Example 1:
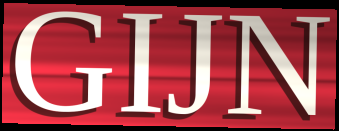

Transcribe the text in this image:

GIJN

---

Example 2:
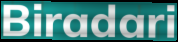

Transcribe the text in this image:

Biradari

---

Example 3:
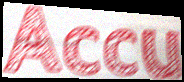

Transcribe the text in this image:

Accu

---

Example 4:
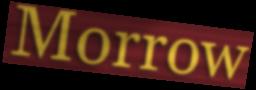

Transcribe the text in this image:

Morrow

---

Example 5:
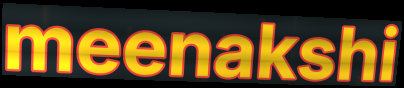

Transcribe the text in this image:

meenakshi